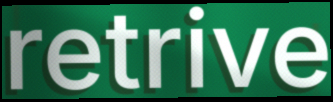
retrive